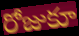
రోజుకూ